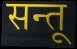
सन्तू